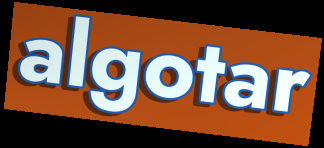
algotar